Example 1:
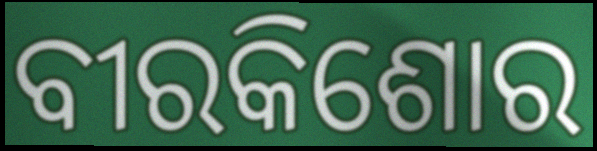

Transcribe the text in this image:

ବୀରକିଶୋର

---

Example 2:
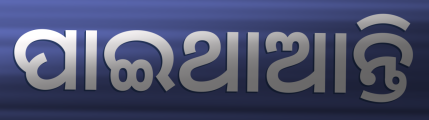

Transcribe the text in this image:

ପାଇଥାଆନ୍ତି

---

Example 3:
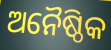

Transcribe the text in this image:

ଅନୈଷ୍ଠିକ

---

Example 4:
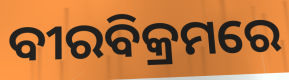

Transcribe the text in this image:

ବୀରବିକ୍ରମରେ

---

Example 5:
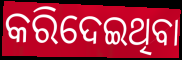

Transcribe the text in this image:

କରିଦେଇଥିବା